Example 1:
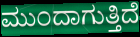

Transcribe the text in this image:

ಮುಂದಾಗುತ್ತಿದೆ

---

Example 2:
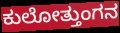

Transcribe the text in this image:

ಕುಲೋತ್ತುಂಗನ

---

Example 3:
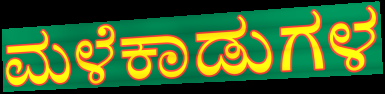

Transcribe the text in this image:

ಮಳೆಕಾಡುಗಳ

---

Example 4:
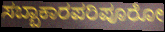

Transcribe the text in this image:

ಸಬ್ಬಾಕಾರಪರಿಪೂರೋ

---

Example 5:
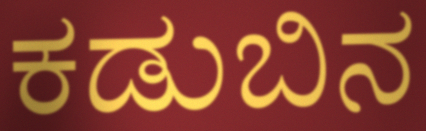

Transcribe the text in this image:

ಕಡುಬಿನ